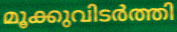
മൂക്കുവിടർത്തി